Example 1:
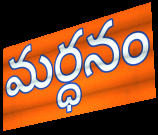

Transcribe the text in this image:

మర్ధనం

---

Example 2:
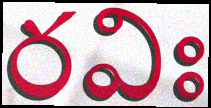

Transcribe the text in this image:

రవిః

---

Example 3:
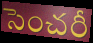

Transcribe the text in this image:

సెంచరీ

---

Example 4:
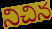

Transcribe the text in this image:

నిచిన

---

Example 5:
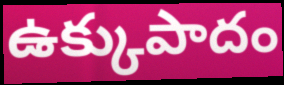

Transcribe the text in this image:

ఉక్కుపాదం